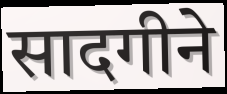
सादगीने